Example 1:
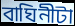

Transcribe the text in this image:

বাঘিনীটা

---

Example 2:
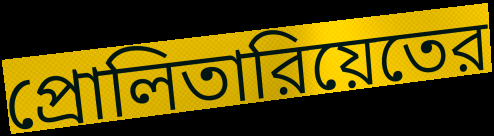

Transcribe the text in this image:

প্রোলিতারিয়েতের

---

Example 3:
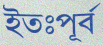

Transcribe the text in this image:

ইতঃপূর্ব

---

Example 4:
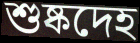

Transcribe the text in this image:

শুষ্কদেহ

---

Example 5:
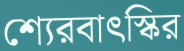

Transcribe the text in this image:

শ্যেরবাৎস্কির